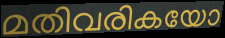
മതിവരികയോ